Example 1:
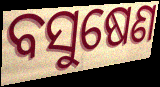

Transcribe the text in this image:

ବସୁଷେଣ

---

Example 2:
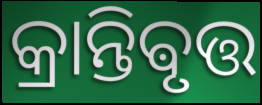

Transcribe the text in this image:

କ୍ରାନ୍ତିଵୃତ୍ତ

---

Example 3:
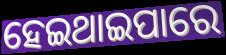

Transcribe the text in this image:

ହେଇଥାଇପାରେ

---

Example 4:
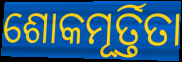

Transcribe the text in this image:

ଶୋକମୂର୍ତ୍ତିତା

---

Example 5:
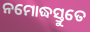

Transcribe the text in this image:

ନମୋଦ୍ଧସ୍ତୁତେ